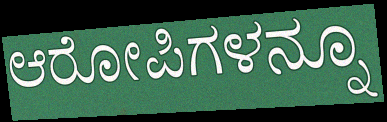
ಆರೋಪಿಗಳನ್ನೂ